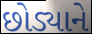
છોડ્યાને